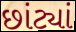
છાંટ્યાં